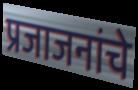
प्रजाजनांचे